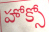
హోక్సో